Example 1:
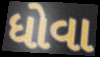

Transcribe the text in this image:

ધોવા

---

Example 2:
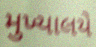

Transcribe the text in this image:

મુખ્યાલયે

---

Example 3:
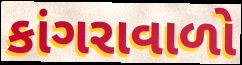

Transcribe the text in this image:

કાંગરાવાળો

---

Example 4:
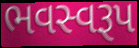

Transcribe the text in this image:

ભવસ્વરૂપ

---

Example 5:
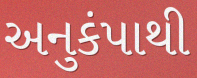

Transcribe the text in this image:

અનુકંપાથી